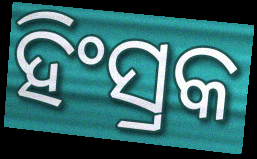
ହିଂସ୍ରକ